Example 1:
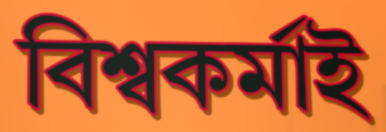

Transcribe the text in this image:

বিশ্বকৰ্মাই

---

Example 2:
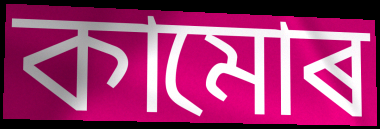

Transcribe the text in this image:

কামোৰ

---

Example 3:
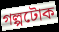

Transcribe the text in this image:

গল্পটোক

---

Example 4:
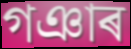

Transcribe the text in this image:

গঞাৰ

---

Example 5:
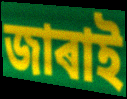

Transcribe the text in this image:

জাৰাই